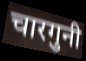
चारगुनी